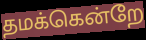
தமக்கென்றே